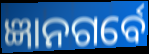
ଜ୍ଞାନଗର୍ବେ